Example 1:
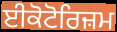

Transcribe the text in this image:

ਈਕੋਟੋਰਿਜ਼ਮ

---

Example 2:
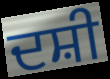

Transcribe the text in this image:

ਦਸ਼ੀ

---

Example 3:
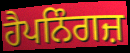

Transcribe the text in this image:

ਹੈਪਨਿੰਗਜ਼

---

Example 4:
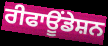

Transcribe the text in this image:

ਰੀਫਾਊਂਡੇਸ਼ਨ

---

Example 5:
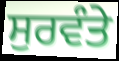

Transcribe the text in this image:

ਸੁਰਵੰਤੇ